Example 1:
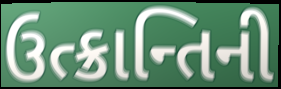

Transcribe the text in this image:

ઉત્ક્રાન્તિની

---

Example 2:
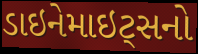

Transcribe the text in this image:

ડાઇનેમાઇટ્સનો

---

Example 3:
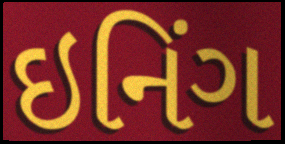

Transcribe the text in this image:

ઇનિંગ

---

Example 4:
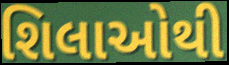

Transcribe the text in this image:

શિલાઓથી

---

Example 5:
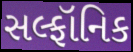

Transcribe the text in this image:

સલ્ફૉનિક